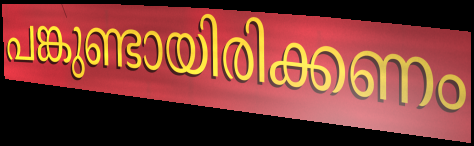
പങ്കുണ്ടായിരിക്കണം